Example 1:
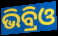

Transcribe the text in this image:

ଭିବ୍ରିଓ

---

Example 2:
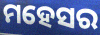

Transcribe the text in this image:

ମହେସର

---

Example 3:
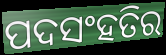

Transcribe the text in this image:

ପଦସଂହତିର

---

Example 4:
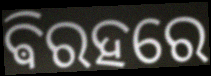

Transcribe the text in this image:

ଵିରହରେ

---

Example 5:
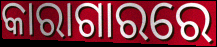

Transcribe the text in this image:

କାରାଗାରରେ